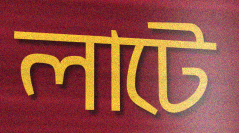
লাটে